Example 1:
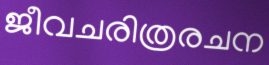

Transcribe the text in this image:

ജീവചരിത്രരചന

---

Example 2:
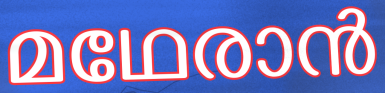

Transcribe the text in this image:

മഥേരാൻ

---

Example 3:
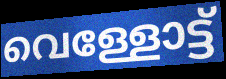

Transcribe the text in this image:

വെള്ളോട്ട്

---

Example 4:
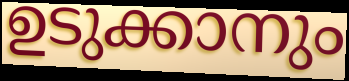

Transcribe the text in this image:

ഉടുക്കാനും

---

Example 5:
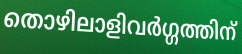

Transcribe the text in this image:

തൊഴിലാളിവർഗ്ഗത്തിന്